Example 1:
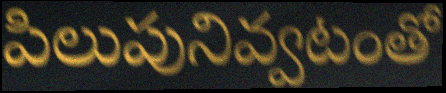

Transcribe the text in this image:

పిలుపునివ్వటంతో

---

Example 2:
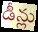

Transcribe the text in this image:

డీన్లు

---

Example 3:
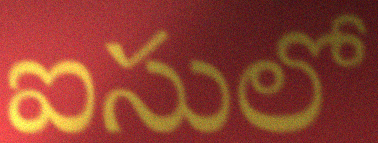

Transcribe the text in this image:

ఐసులో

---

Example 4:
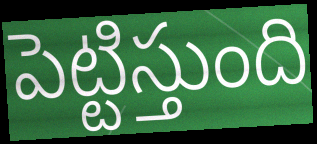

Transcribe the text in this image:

పెట్టిస్తుంది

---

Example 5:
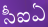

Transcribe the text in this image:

సీఐఏ